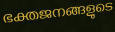
ഭക്തജനങ്ങളുടെ